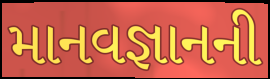
માનવજ્ઞાનની